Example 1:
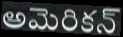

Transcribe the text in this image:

అమెరికన్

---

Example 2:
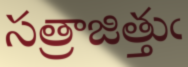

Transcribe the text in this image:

సత్రాజిత్తుఁ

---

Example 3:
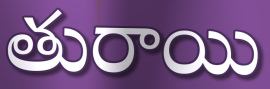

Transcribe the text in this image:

తురాయి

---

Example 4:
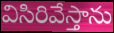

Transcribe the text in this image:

విసిరివేస్తాను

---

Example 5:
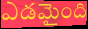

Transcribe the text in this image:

ఎడమైంది